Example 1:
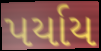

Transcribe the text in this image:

પર્યાય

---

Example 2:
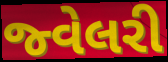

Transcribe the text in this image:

જ્વેલરી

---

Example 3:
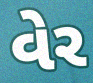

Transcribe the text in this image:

વેર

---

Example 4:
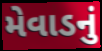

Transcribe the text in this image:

મેવાડનું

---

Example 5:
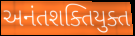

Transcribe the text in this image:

અનંતશક્તિયુક્ત